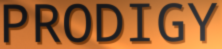
PRODIGY